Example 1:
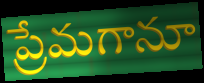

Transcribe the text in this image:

ప్రేమగానూ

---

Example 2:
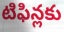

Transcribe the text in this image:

టిఫిన్లకు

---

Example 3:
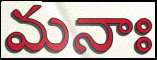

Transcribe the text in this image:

మనాః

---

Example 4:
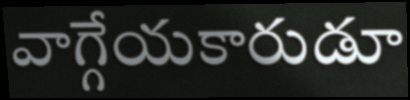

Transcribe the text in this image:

వాగ్గేయకారుడూ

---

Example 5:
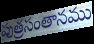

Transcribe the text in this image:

పుత్రసంతానము